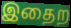
இதைற